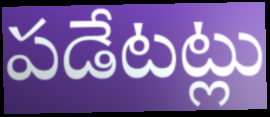
పడేటట్లు